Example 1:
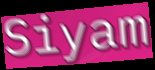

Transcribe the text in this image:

Siyam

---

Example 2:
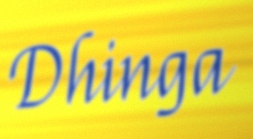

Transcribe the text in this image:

Dhinga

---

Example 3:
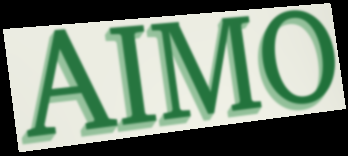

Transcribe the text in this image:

AIMO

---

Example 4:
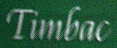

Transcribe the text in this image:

Timbac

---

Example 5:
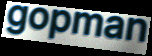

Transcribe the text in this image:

gopman